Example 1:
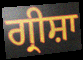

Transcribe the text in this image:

ਗ੍ਰੀਸ਼ਾ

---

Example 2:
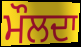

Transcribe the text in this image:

ਮੌਲਦਾ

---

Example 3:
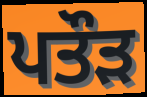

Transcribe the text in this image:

ਪਤੌੜ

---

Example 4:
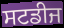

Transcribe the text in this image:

ਸਟਡੀਜ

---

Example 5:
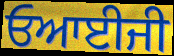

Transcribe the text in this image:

ਓਆਈਜੀ